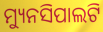
ମ୍ୟୁନସିପାଲଟି